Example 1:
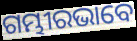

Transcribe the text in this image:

ଗମ୍ଭୀରଭାବେ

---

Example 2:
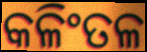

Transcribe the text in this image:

କଳିଂତଳ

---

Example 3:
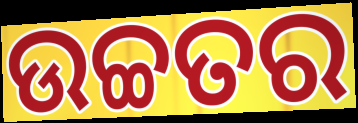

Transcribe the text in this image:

ଉଚ୍ଚତର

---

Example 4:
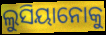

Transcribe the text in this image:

ଲୁସିୟାନୋକୁ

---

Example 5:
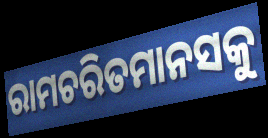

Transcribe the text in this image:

ରାମଚରିତମାନସକୁ